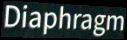
Diaphragm